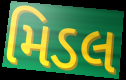
મિડલ